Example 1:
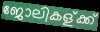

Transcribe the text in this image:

ജോലികള്ക്ക്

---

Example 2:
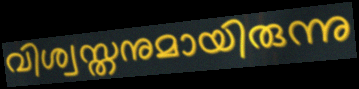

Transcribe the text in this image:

വിശ്വസ്തനുമായിരുന്നു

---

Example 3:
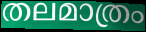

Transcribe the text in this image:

തലമാത്രം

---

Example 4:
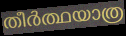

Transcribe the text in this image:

തീർത്ഥയാത്ര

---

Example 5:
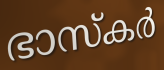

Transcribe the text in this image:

ഭാസ്കർ